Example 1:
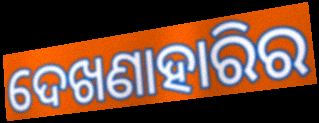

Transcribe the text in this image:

ଦେଖଣାହାରିର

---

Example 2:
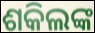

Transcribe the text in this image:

ଶକିଲଙ୍କ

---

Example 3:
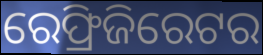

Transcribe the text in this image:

ରେଫ୍ରିଜିରେଟର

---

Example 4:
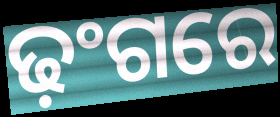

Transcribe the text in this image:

ଢ଼ଂଗରେ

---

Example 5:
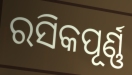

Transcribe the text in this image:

ରସିକପୂର୍ଣ୍ଣ